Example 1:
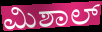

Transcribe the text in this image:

ಮಿಶಾಲ್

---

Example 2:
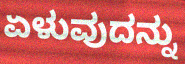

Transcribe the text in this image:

ಏಳುವುದನ್ನು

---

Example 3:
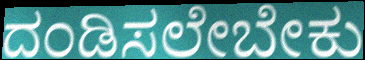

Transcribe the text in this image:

ದಂಡಿಸಲೇಬೇಕು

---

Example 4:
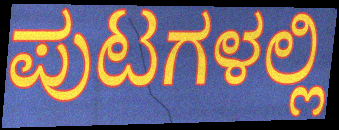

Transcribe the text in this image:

ಪುಟಗಳಲ್ಲಿ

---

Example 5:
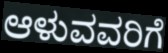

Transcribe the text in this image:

ಆಳುವವರಿಗೆ